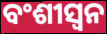
ବଂଶୀସ୍ୱନ